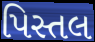
પિસ્તલ